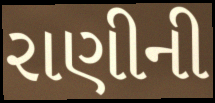
રાણીની